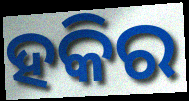
ହକିର